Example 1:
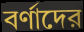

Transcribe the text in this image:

বর্ণাদের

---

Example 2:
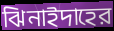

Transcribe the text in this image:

ঝিনাইদাহের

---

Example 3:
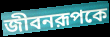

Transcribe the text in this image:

জীবনরূপকে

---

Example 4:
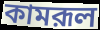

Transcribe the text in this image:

কামরূল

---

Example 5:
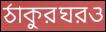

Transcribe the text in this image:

ঠাকুরঘরও